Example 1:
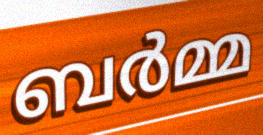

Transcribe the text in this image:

ബർമ്മ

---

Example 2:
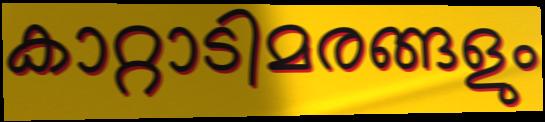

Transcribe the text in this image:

കാറ്റാടിമരങ്ങളും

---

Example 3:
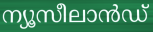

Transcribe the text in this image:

ന്യൂസീലാൻഡ്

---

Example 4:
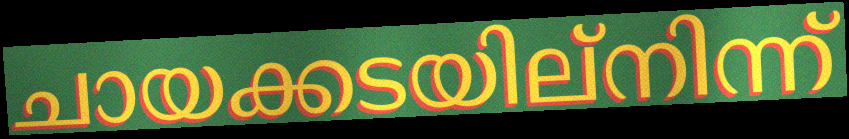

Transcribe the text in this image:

ചായക്കടയില്നിന്ന്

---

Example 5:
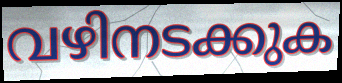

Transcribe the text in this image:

വഴിനടക്കുക